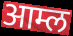
आम्‍ल